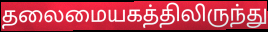
தலைமையகத்திலிருந்து